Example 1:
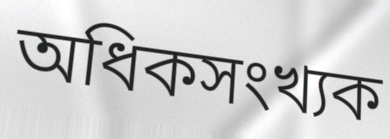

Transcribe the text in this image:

অধিকসংখ্যক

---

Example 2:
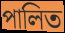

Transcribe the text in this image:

পালিত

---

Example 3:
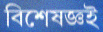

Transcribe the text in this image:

বিশেষজ্ঞই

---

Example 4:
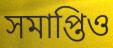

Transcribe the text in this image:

সমাপ্তিও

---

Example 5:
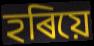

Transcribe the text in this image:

হৰিয়ে